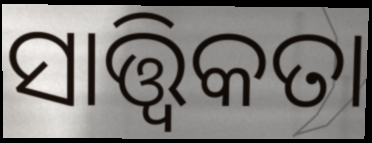
ସାତ୍ତ୍ଵିକତା